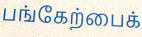
பங்கேற்பைக்